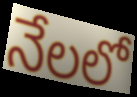
నేలలో